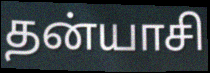
தன்யாசி